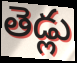
తెడ్లు